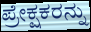
ಪ್ರೇಕ್ಷಕರನ್ನು